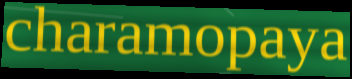
charamopaya